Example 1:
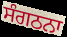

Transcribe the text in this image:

ਸੰਗਠਨਾ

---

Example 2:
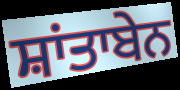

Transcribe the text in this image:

ਸ਼ਾਂਤਾਬੇਨ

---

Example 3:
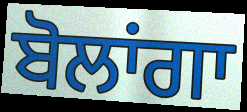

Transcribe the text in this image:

ਬੋਲਾਂਗਾ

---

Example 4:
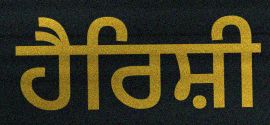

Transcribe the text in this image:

ਹੈਰਿਸ਼ੀ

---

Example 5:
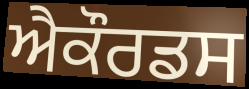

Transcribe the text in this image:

ਐਕੌਰਡਸ